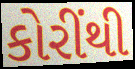
કોરીંથી